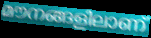
മൗനങ്ങളിലാണ്